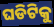
ଘଡିଟିକୁ